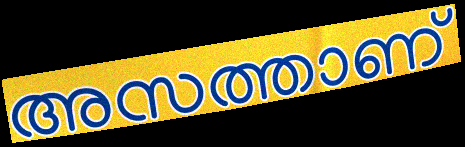
അസത്താണ്